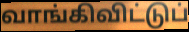
வாங்கிவிட்டுப்